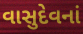
વાસુદેવનાં